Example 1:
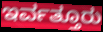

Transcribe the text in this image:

ಇರ್ವತ್ತೂರು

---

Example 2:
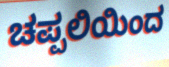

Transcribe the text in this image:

ಚಪ್ಪಲಿಯಿಂದ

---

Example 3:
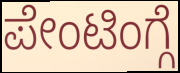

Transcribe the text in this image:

ಪೇಂಟಿಂಗ್ಗೆ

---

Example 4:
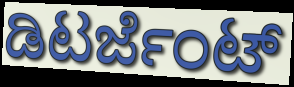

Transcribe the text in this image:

ಡಿಟರ್ಜೆಂಟ್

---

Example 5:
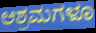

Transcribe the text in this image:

ಆಶ್ರಮಗಳೂ